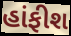
હાંફીશ